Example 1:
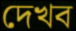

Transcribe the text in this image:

দেখব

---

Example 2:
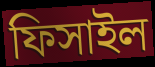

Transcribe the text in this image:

ফিসাইল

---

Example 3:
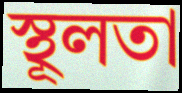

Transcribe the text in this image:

স্থূলতা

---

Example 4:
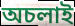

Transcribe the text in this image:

অচলাই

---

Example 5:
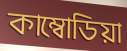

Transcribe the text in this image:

কাম্বোডিয়া